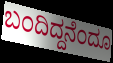
ಬಂದಿದ್ದನೆಂದೂ